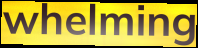
whelming